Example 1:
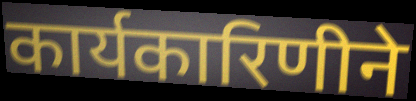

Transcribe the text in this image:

कार्यकारिणीने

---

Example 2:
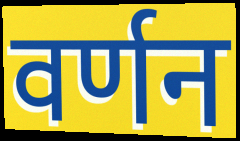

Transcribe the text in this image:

वर्णन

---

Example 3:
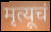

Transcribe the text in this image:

मृत्यूचं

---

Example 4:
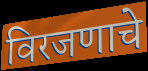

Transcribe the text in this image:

विरजणाचे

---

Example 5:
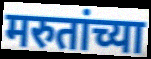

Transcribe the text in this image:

मरुतांच्या